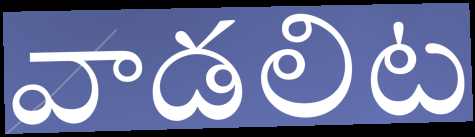
వాడలిట